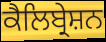
ਕੈਲਿਬ੍ਰੇਸ਼ਨ